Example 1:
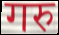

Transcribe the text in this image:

गरु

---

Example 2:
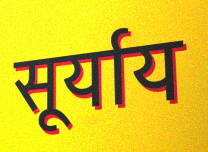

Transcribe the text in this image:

सूर्याय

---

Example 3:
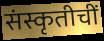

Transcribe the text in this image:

संस्कृतीचीं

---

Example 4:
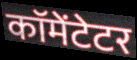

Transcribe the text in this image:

कॉमेंटेटर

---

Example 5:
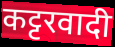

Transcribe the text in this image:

कट्टरवादी